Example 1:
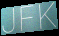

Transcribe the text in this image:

JFK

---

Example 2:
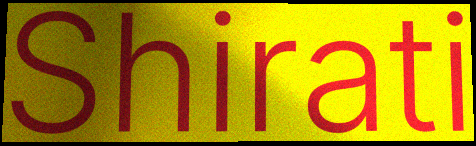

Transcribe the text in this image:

Shirati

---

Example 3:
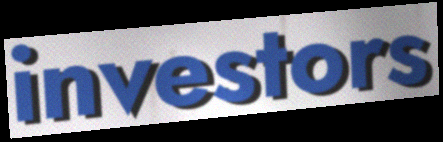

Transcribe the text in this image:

investors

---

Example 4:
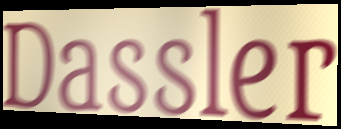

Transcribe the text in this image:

Dassler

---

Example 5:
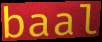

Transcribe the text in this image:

baal